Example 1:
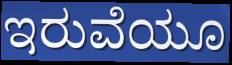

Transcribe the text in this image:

ಇರುವೆಯೂ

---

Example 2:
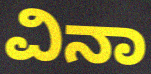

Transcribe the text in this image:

ವಿನಾ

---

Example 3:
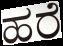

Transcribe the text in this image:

ಹರೆ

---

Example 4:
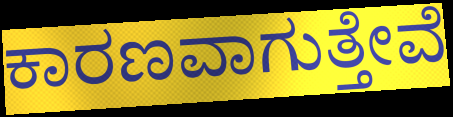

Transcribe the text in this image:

ಕಾರಣವಾಗುತ್ತೇವೆ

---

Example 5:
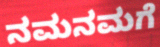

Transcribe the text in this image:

ನಮನಮಗೆ